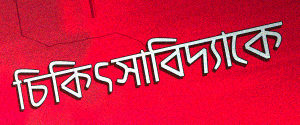
চিকিৎসাবিদ্যাকে